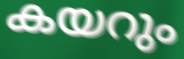
കയറും